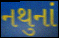
નથુનાં